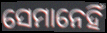
ସେମାନେହିଁ